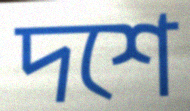
দশে